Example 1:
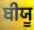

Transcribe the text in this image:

ਬੀਯੂ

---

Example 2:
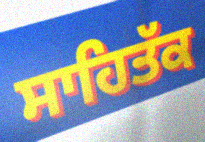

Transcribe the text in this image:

ਸਾਹਿਤੱਕ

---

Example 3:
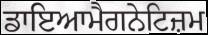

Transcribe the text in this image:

ਡਾਇਆਮੈਗਨੇਟਿਜ਼ਮ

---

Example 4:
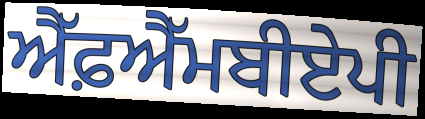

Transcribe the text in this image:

ਐੱਫ਼ਐੱਮਬੀਏਪੀ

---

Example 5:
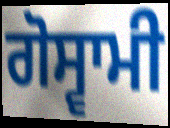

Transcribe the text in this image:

ਗੋਸ੍ਵਾਮੀ